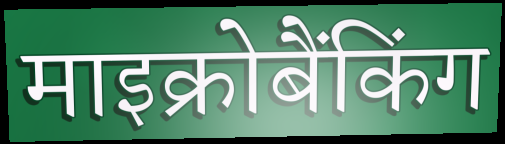
माइक्रोबैंकिंग